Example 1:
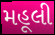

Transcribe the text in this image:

મહૂલી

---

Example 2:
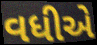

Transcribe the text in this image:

વધીએ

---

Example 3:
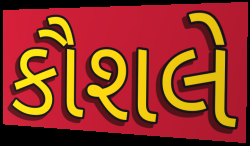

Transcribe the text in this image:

કૌશલે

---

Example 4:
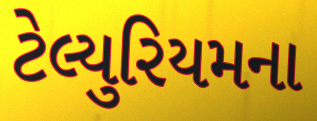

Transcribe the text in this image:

ટેલ્યુરિયમના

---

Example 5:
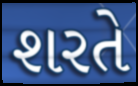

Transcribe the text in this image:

શરતે